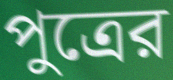
পুত্রের